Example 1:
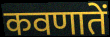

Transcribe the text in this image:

कवणातें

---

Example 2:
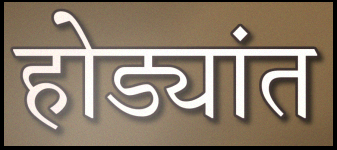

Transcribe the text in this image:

होड्यांत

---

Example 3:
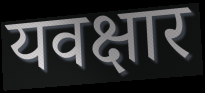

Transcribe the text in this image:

यवक्षार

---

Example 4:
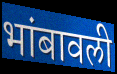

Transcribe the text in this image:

भांबावली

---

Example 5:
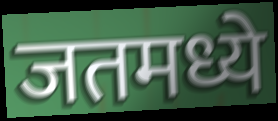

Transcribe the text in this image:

जतमध्ये